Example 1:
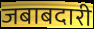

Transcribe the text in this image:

जबाबदारी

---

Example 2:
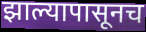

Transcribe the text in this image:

झाल्यापासूनच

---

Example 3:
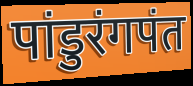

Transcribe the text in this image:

पांडुरंगपंत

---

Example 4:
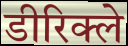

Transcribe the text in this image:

डीरिक्ले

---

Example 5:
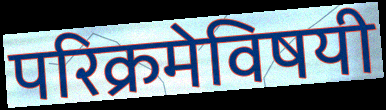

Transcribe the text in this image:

परिक्रमेविषयी